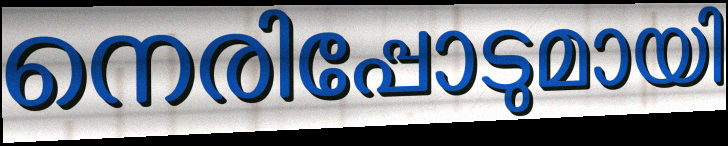
നെരിപ്പോടുമായി